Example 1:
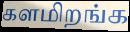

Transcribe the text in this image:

களமிறங்க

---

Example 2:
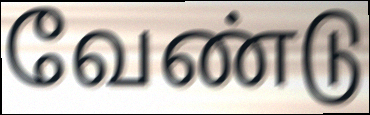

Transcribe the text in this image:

வேண்டு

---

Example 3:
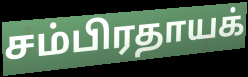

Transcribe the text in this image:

சம்பிரதாயக்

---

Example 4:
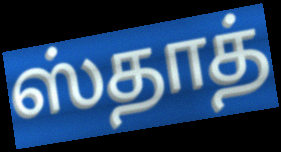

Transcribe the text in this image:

ஸ்தாத்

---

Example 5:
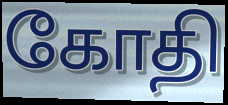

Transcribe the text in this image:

கோதி